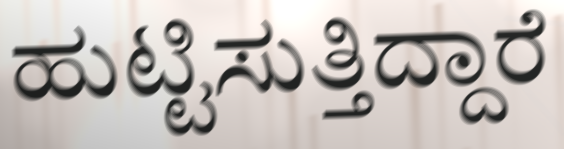
ಹುಟ್ಟಿಸುತ್ತಿದ್ದಾರೆ